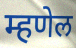
म्हणेल